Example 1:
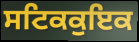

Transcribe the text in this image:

ਸਟਿਕਕੁਇਕ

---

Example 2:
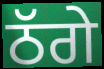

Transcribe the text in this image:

ਠੱਗੇ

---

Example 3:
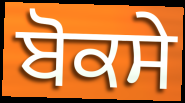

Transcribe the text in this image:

ਬੋਕਸੇ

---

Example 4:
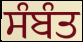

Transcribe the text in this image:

ਸੰਬੰਤ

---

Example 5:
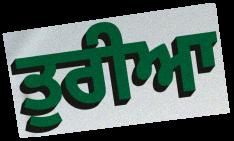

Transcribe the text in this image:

ਤੁਰੀਆ